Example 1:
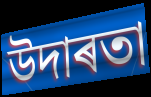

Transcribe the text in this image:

উদাৰতা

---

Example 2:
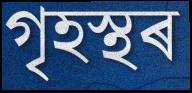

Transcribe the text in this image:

গৃহস্থৰ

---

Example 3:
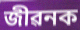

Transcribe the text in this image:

জীৱনক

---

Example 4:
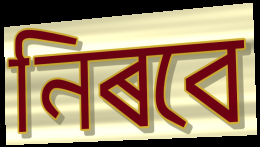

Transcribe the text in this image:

নিৰবে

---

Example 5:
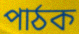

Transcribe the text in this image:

পাঠক